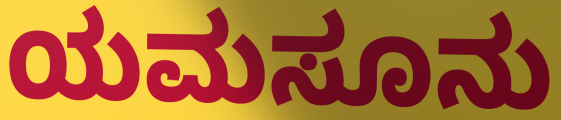
ಯಮಸೂನು